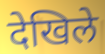
देखिले